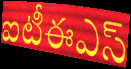
ఐటీఈఎస్